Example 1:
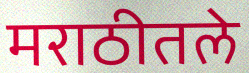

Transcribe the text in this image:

मराठीतले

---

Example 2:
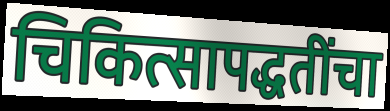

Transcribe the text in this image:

चिकित्सापद्धतींचा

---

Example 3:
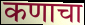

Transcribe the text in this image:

कणाचा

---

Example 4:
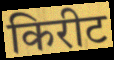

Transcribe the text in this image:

किरीट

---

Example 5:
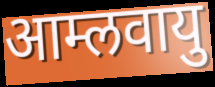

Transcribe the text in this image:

आम्लवायु